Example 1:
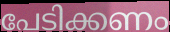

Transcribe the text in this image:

പേടിക്കണം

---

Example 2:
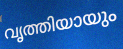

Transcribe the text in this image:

വൃത്തിയായും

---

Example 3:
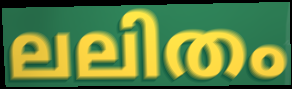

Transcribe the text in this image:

ലലിതം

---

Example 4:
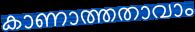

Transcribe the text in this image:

കാണാത്തതാവാം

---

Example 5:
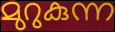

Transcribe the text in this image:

മുറുകുന്ന